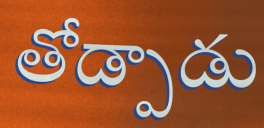
తోడ్పాడు